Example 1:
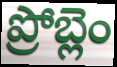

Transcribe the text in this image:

ప్రోబ్లెం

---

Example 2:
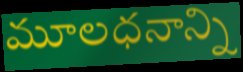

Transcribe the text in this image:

మూలధనాన్ని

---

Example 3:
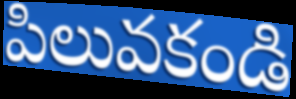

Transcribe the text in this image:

పిలువకండి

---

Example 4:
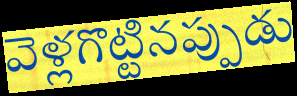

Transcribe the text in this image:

వెళ్లగొట్టినప్పుడు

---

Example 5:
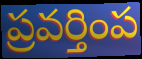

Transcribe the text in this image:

ప్రవర్తింప